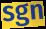
sgn